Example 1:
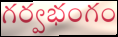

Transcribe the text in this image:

గర్వభంగం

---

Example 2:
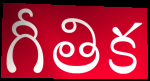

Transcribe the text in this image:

గీతిక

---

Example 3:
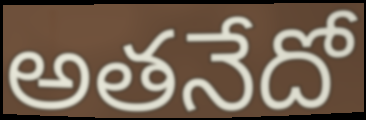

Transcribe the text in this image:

అతనేదో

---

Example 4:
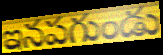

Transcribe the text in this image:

ఇనపగుండు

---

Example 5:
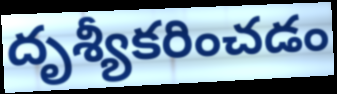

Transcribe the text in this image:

దృశ్యీకరించడం